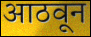
आठवून